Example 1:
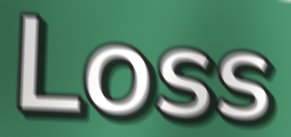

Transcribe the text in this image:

Loss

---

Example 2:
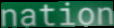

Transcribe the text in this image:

nation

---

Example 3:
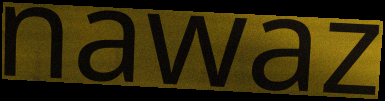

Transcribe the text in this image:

nawaz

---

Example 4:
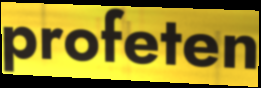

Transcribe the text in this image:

profeten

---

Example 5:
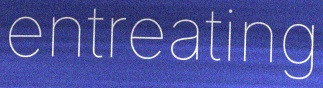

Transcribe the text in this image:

entreating